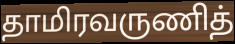
தாமிரவருணித்